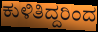
ಕುಳಿತಿದ್ದರಿಂದ